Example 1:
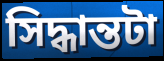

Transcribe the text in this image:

সিদ্ধান্তটা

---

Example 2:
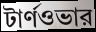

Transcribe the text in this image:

টার্ণওভার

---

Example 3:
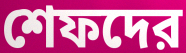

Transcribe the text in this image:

শেফদের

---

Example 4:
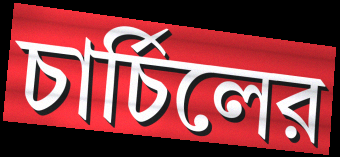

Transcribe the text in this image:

চার্চিলের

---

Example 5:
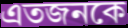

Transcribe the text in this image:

এতজনকে